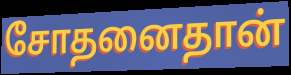
சோதனைதான்